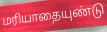
மரியாதையுண்டு